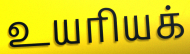
உயரியக்